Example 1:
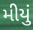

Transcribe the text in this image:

મીયું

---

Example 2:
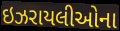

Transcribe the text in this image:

ઇઝરાયલીઓના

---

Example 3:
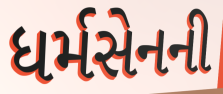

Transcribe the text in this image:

ધર્મસેનની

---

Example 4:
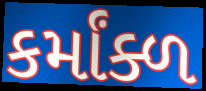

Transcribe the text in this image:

કર્માંક્ળ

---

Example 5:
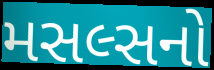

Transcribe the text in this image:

મસલ્સનો